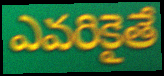
ఎవరికైతే